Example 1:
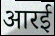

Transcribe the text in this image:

आरई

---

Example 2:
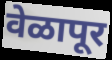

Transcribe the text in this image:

वेळापूर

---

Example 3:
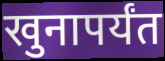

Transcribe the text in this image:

खुनापर्यंत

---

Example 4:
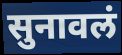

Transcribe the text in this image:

सुनावलं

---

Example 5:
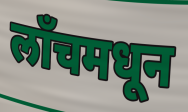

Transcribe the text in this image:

लॉंचमधून